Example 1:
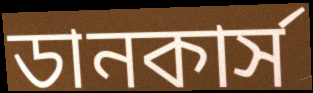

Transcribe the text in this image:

ডানকার্স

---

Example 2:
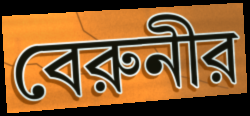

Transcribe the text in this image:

বেরুনীর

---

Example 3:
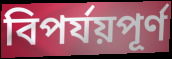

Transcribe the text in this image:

বিপর্যয়পূর্ণ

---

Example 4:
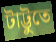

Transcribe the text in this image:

টাট্টুতে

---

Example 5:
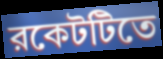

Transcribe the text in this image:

রকেটটিতে